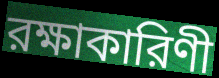
রক্ষাকারিণী